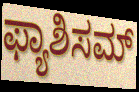
ಫ್ಯಾಶಿಸಮ್